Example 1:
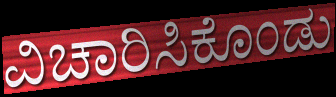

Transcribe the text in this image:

ವಿಚಾರಿಸಿಕೊಂಡು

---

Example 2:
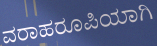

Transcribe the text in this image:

ವರಾಹರೂಪಿಯಾಗಿ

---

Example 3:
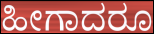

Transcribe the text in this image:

ಹೀಗಾದರೂ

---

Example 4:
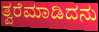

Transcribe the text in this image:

ತ್ವರೆಮಾಡಿದನು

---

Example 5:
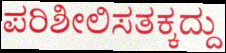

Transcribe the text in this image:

ಪರಿಶೀಲಿಸತಕ್ಕದ್ದು